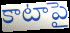
కాటాపై